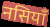
नसियाँ